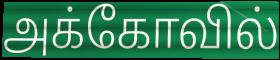
அக்கோவில்